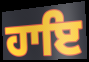
ਹਾਇ